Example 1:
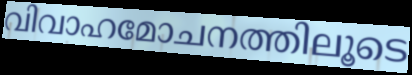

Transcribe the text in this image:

വിവാഹമോചനത്തിലൂടെ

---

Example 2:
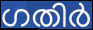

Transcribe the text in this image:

ഗതിർ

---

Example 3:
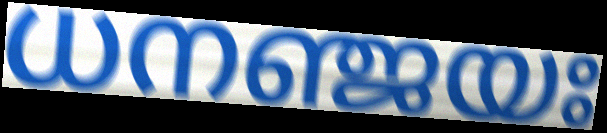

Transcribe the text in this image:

ധനഞ്ജയഃ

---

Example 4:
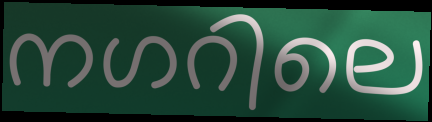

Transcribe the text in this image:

നഗറിലെ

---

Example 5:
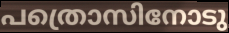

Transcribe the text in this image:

പത്രൊസിനോടു